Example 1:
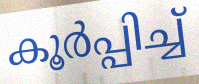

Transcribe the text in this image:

കൂർപ്പിച്ച്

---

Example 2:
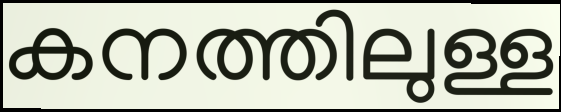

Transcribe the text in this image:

കനത്തിലുള്ള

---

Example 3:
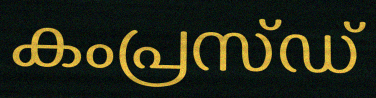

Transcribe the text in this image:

കംപ്രസ്ഡ്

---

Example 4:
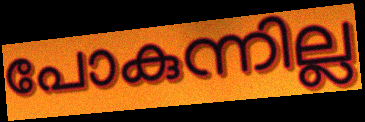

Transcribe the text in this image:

പോകുന്നില്ല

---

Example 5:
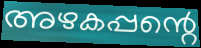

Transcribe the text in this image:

അഴകപ്പന്റെ